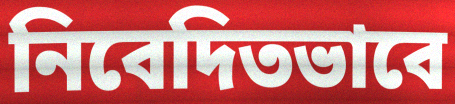
নিবেদিতভাবে